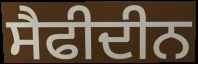
ਸੈਫੀਦੀਨ